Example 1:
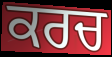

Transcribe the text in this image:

ਕਰਚ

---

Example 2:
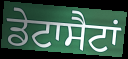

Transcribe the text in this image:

ਡੇਟਾਸੈਟਾਂ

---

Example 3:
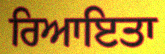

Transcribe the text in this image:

ਰਿਆਇਤਾ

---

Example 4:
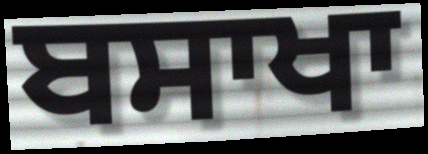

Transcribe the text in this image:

ਬਸਾਖਾ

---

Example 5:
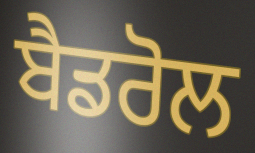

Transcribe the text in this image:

ਬੈਡਰੋਲ